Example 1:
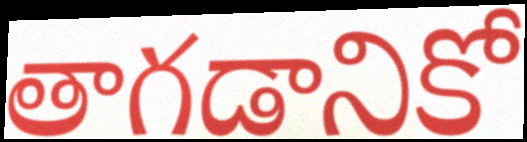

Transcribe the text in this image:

తాగడానికో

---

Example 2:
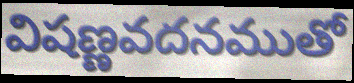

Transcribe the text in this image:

విషణ్ణవదనముతో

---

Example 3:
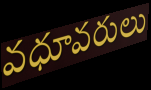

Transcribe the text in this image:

వధూవరులు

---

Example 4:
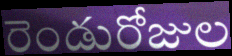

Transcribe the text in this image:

రెండురోజుల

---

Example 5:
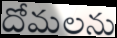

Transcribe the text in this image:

దోమలను